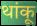
थांकू